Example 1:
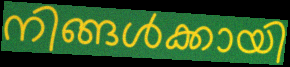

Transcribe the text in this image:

നിങ്ങൾക്കായി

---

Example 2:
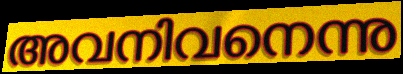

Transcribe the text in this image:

അവനിവനെന്നു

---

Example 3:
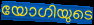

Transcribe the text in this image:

യോഗിയുടെ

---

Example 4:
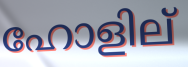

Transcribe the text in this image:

ഹോളില്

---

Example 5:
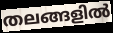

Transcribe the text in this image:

തലങ്ങളിൽ